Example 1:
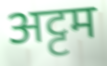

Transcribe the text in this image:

अट्टम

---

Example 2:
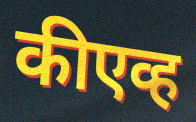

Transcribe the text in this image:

कीएव्ह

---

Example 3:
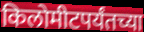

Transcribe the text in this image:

किलोमीटपर्यंतच्या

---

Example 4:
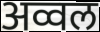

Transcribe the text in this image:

अव्वल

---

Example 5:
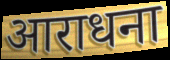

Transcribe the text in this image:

आराधना